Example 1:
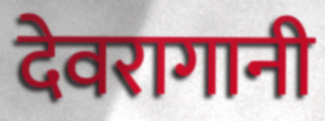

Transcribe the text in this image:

देवरागानी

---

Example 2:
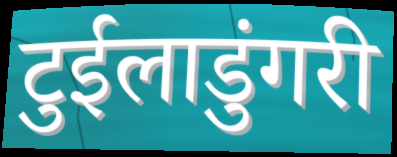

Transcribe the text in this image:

टुईलाडुंगरी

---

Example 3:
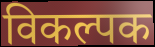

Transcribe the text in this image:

विकल्पक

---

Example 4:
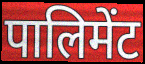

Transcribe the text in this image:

पालिमेंट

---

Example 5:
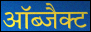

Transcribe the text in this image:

ऑब्जैक्ट